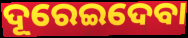
ଦୂରେଇଦେବା